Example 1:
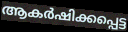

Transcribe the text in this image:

ആകർഷിക്കപ്പെട്ട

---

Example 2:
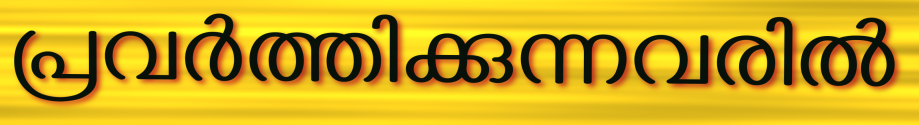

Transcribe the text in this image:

പ്രവർത്തിക്കുന്നവരിൽ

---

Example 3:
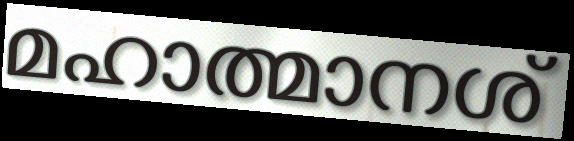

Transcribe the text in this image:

മഹാത്മാനശ്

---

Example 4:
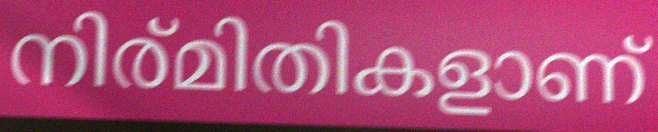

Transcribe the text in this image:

നിര്മിതികളാണ്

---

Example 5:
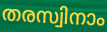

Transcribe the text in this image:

തരസ്വിനാം